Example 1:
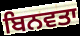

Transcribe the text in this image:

ਬਿਨਵਤਾ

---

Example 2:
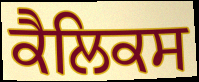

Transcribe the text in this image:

ਕੈਲਿਕਸ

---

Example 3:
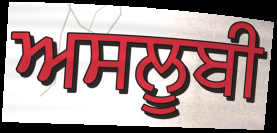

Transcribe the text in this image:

ਅਸਲੂਬੀ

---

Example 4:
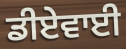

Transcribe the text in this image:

ਡੀਏਵਾਈ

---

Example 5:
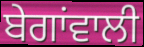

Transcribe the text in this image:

ਬੇਗਾਂਵਾਲੀ